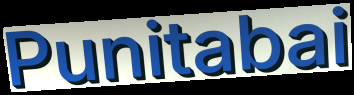
Punitabai